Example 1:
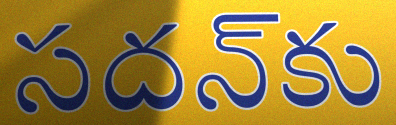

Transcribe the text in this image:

సదన్‌కు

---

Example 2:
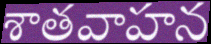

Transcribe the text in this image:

శాతవాహన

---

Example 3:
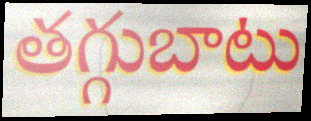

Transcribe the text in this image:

తగ్గుబాటు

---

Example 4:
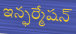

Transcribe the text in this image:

ఇన్ఫర్మేషన్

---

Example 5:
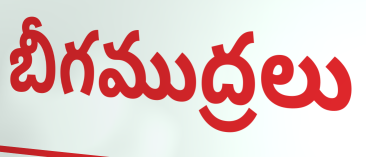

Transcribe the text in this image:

బీగముద్రలు